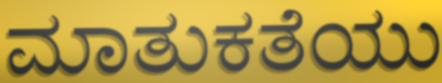
ಮಾತುಕತೆಯು